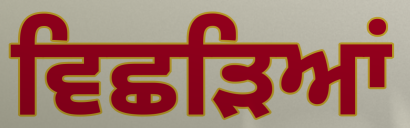
ਵਿਛੜਿਆਂ